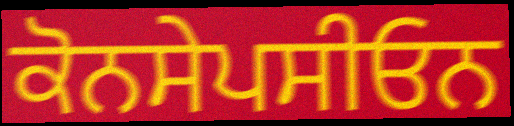
ਕੋਨਸੇਪਸੀਓਨ